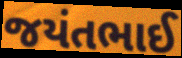
જયંતભાઈ